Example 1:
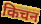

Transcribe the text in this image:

किचन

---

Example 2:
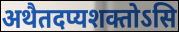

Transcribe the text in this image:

अथैतदप्यशक्तोऽसि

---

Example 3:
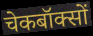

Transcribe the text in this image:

चेकबॉक्सों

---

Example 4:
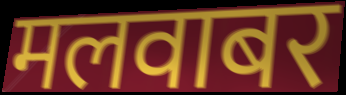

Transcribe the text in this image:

मलवाबर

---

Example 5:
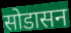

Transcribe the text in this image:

सोडासन